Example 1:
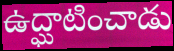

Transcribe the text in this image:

ఉద్ఘాటించాడు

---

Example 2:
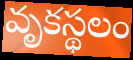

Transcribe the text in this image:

వృకస్థలం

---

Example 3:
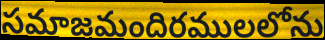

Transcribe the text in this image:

సమాజమందిరములలోను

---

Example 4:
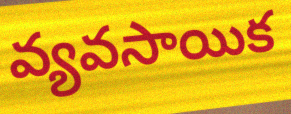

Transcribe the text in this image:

వ్యవసాయిక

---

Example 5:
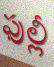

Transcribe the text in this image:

ఫుల్లీ